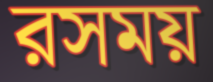
রসময়